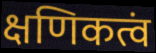
क्षणिकत्वं